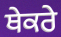
ਥੇਕਰੇ